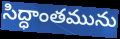
సిద్ధాంతమును